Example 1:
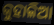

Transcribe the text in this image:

କୁହାଳିଆ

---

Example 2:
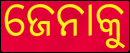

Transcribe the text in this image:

ଜେନାକୁ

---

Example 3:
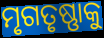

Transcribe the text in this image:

ମୃଗତୃଷ୍ଣାକୁ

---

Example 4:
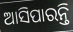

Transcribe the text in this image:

ଆସିପାରନ୍ତି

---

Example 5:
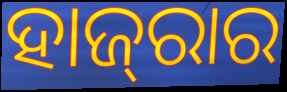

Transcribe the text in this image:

ହାଜ୍‌ରାର